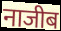
नाजीब